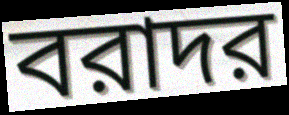
বরাদর